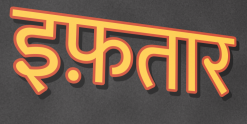
इफ़तार